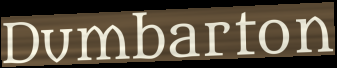
Dumbarton